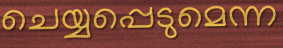
ചെയ്യപ്പെടുമെന്ന